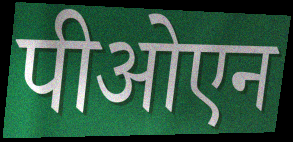
पीओएन